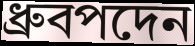
ধ্রুবপদেন